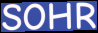
SOHR